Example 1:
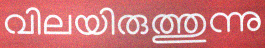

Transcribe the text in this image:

വിലയിരുത്തുന്നു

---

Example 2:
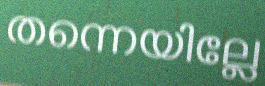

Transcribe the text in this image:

തന്നെയില്ലേ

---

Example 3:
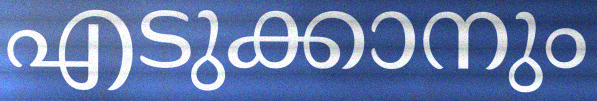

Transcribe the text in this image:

എടുക്കാനും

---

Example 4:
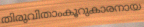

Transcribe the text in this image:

തിരുവിതാംകൂറുകാരനായ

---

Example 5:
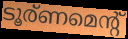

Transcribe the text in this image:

ടൂര്ണമെന്റ്